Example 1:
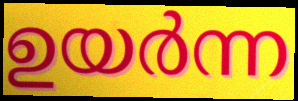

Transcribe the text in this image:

ഉയർന്ന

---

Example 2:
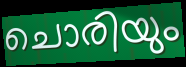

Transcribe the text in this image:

ചൊരിയും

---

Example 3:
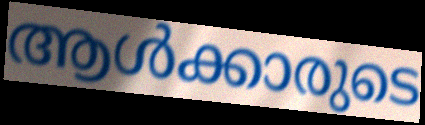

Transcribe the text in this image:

ആൾക്കാരുടെ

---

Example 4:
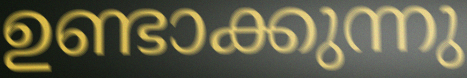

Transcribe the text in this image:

ഉണ്ടാക്കുന്നു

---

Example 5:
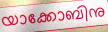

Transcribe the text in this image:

യാക്കോബിനു